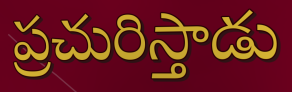
ప్రచురిస్తాడు